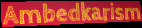
Ambedkarism